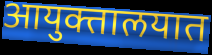
आयुक्तालयात